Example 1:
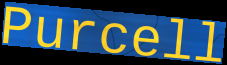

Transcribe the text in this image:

Purcell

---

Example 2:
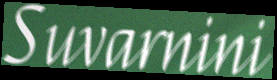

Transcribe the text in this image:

Suvarnini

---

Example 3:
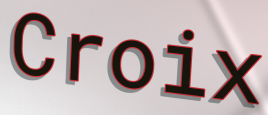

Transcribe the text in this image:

Croix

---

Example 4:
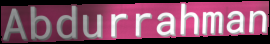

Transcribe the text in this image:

Abdurrahman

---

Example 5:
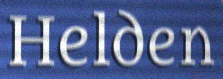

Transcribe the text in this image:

Helden